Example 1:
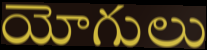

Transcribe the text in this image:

యోగులు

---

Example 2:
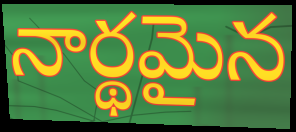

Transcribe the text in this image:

నార్థమైన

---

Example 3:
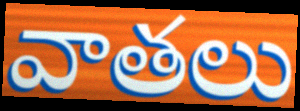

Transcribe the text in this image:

వాతలు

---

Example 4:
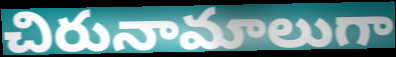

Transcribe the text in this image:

చిరునామాలుగా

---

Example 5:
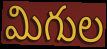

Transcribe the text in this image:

మిగుల